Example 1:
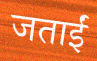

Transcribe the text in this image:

जताईं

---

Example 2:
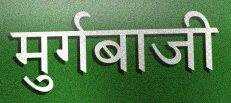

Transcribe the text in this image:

मुर्गबाजी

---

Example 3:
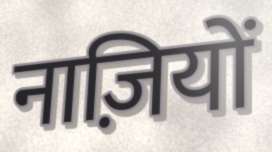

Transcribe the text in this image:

नाज़ियों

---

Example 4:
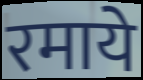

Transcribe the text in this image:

रमाये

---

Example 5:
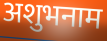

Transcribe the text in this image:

अशुभनाम